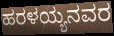
ಹರಳಯ್ಯನವರ